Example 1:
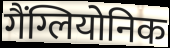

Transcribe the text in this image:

गैंग्लियोनिक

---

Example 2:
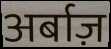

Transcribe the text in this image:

अर्बाज़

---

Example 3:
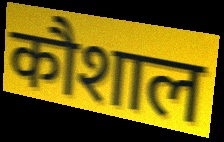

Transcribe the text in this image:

कौशाल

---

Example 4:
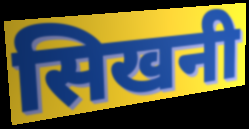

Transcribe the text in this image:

सिखनी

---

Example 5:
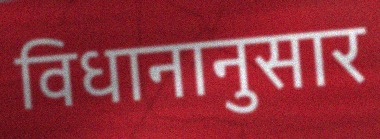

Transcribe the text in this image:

विधानानुसार